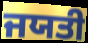
ਜਯਤੀ